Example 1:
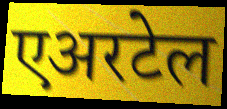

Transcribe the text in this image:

एअरटेल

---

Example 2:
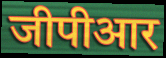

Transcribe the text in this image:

जीपीआर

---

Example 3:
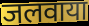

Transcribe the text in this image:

जलवाया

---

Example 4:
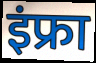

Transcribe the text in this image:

इंफ्रा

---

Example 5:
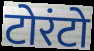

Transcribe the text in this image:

टोरंटो